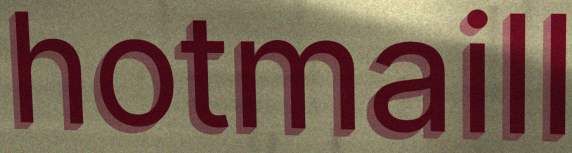
hotmaill